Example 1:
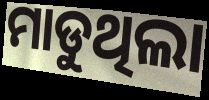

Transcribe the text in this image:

ମାଡୁଥିଲା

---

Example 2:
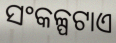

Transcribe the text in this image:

ସଂକଳ୍ପଟାଏ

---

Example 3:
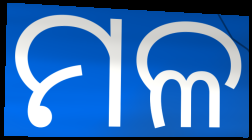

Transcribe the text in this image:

ମଳ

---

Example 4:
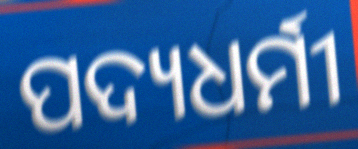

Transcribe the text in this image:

ପଦ୍ୟଧର୍ମୀ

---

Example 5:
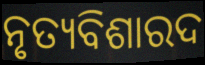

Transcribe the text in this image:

ନୃତ୍ୟବିଶାରଦ